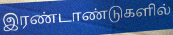
இரண்டாண்டுகளில்